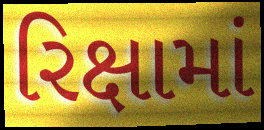
રિક્ષામાં